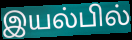
இயல்பில்